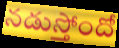
నడుస్తోందో